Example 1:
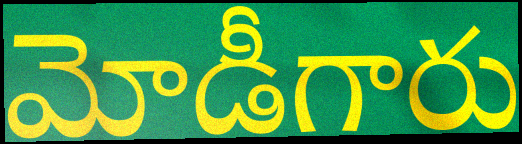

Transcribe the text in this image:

మోడీగారు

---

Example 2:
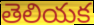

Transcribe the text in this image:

తెలియక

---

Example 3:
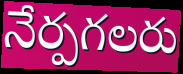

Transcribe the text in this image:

నేర్పగలరు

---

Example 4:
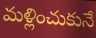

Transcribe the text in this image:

మళ్లించుకునే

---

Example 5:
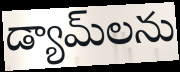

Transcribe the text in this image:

డ్యామ్‌లను